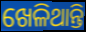
ଖେଳିଥାନ୍ତି